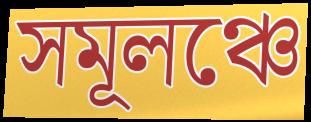
সমূলঞ্চে